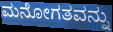
ಮನೋಗತವನ್ನು